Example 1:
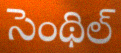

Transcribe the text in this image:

సెంథిల్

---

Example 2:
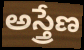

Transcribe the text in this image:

అస్త్రేణ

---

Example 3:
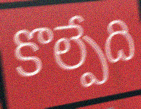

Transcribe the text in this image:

కొల్పేది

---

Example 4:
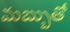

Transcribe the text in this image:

మబ్బుతో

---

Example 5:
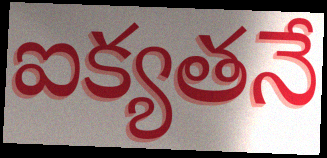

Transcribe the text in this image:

ఐక్యతనే